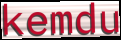
kemdu